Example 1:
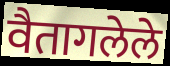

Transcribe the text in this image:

वैतागलेले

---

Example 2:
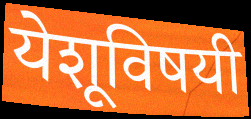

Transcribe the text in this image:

येशूविषयी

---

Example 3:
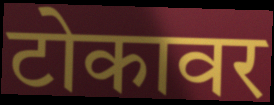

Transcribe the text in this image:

टोकावर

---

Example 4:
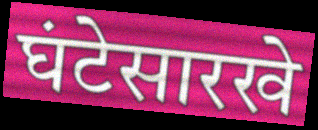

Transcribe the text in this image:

घंटेसारखे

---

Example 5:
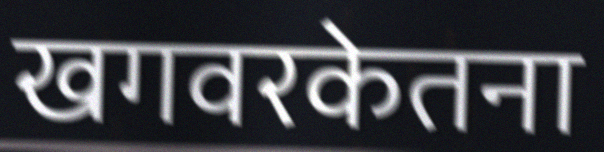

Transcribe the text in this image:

खगवरकेतना